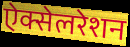
ऐक्सेलरेशन